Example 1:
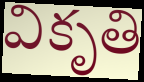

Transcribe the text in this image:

వికృతి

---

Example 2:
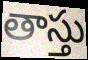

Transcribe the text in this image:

తాస్తు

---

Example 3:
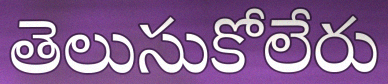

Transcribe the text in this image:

తెలుసుకోలేరు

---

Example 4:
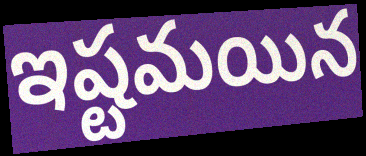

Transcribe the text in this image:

ఇష్టమయిన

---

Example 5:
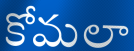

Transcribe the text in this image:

కోమలా